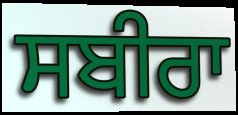
ਸਬੀਰਾ